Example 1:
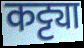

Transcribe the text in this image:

कट्ट्या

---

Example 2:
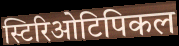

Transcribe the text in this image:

स्टिरिओटिपिकल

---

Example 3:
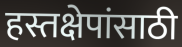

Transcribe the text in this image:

हस्तक्षेपांसाठी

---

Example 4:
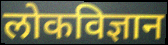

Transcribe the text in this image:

लोकविज्ञान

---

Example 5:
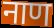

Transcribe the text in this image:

नाण